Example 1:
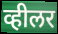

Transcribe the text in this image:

व्हीलर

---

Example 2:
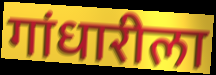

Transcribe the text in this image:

गांधारीला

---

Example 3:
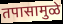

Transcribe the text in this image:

तपासामुळे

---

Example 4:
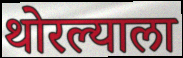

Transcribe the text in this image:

थोरल्याला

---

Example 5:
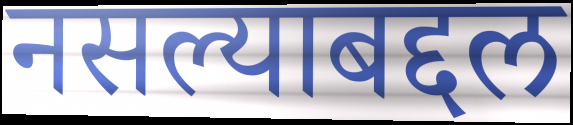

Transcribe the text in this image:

नसल्याबद्दल